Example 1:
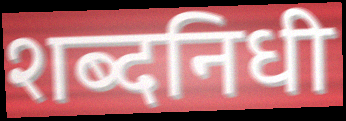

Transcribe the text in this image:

शब्दनिधी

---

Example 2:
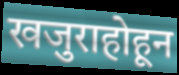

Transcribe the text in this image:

खजुराहोहून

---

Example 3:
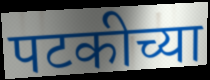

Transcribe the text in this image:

पटकीच्या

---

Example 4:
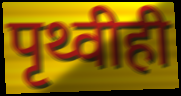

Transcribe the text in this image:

पृथ्वीही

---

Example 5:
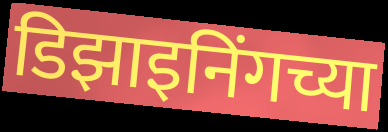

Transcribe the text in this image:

डिझाइनिंगच्या